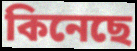
কিনেছে